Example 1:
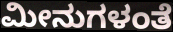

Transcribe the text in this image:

ಮೀನುಗಳಂತೆ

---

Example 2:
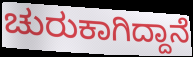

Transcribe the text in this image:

ಚುರುಕಾಗಿದ್ದಾನೆ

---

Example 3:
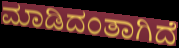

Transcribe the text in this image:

ಮಾಡಿದಂತಾಗಿದೆ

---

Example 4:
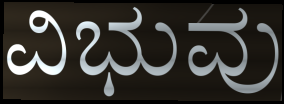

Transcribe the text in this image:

ವಿಭುವು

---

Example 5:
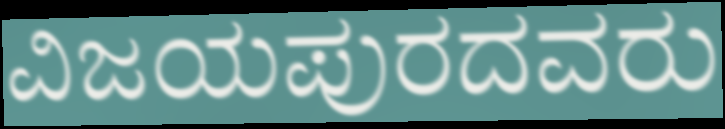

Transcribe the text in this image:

ವಿಜಯಪುರದವರು